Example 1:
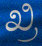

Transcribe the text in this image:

ಖ್ರಿ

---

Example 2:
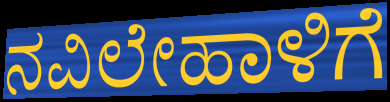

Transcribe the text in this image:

ನವಿಲೇಹಾಳಿಗೆ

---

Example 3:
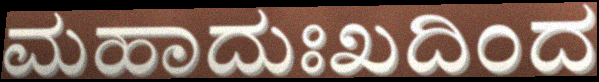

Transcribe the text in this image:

ಮಹಾದುಃಖದಿಂದ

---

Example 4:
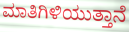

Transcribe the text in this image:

ಮಾತಿಗಿಳಿಯುತ್ತಾನೆ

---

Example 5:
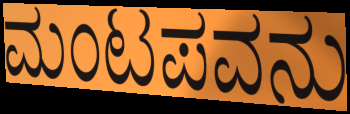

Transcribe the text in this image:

ಮಂಟಪವನು